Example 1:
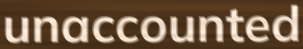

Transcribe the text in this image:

unaccounted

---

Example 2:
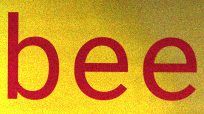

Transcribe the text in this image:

bee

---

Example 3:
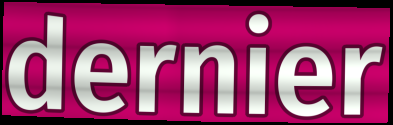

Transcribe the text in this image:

dernier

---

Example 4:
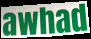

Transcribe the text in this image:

awhad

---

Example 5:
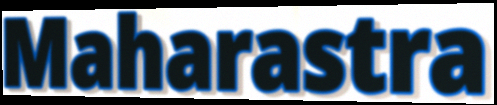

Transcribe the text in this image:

Maharastra